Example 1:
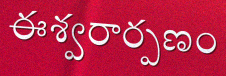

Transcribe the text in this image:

ఈశ్వరార్పణం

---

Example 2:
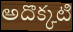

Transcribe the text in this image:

అదొక్కటి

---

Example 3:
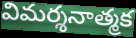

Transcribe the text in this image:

విమర్శనాత్మక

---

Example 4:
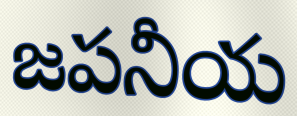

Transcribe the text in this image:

జపనీయ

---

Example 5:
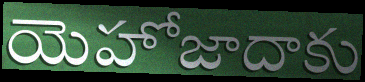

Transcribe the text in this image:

యెహోజాదాకు